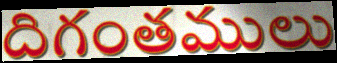
దిగంతములు